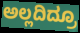
ಅಲ್ಲದಿದ್ರೂ